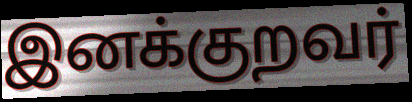
இனக்குறவர்